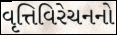
વૃત્તિવિરેચનનો